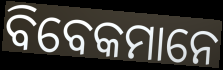
ବିବେକମାନେ